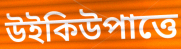
উইকিউপাত্তে